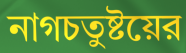
নাগচতুষ্টয়ের